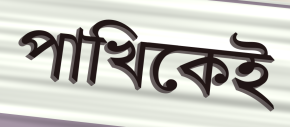
পাখিকেই